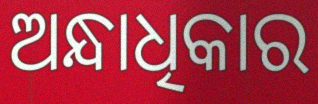
ଅନ୍ଧାଧିକାର